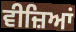
ਵੀਜ਼ਿਆਂ